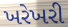
ખરેખરી